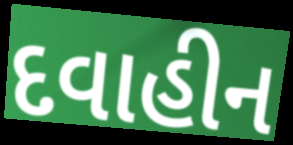
દવાહીન